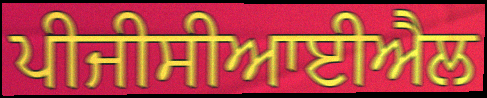
ਪੀਜੀਸੀਆਈਐਲ